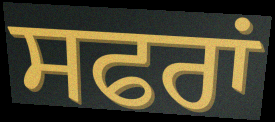
ਸਫਰਾਂ